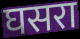
घसरा